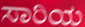
ಸಾರಿಯ